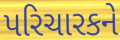
પરિચારકને